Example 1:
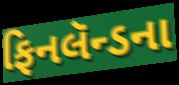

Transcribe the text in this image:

ફિનલૅન્ડના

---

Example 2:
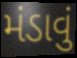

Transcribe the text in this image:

મંડાવું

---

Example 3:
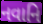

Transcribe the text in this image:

નવાનિ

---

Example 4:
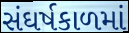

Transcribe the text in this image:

સંઘર્ષકાળમાં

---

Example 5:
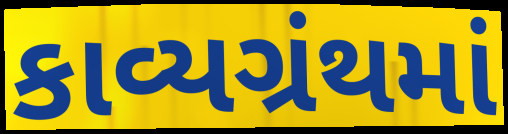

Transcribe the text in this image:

કાવ્યગ્રંથમાં